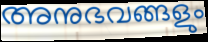
അനുഭവങ്ങളും